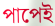
পাপেই